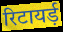
रिटायर्ड़